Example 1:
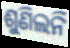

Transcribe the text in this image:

ଶୁଣିଲନି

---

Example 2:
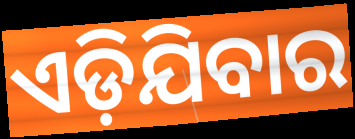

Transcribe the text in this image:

ଏଡ଼ିଯିବାର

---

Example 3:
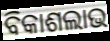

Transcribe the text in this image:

ବିକାଶଲାଭ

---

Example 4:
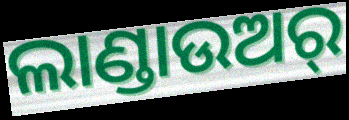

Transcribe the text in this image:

ଲାଣ୍ଡାଉଅର୍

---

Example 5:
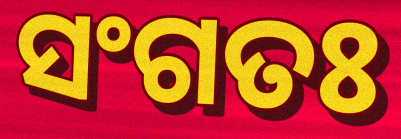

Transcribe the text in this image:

ସଂଗତଃ